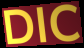
DIC